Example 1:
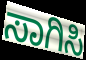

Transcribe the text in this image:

ಸಾಗಿಸಿ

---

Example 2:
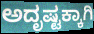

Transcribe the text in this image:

ಅದೃಷ್ಟಕ್ಕಾಗಿ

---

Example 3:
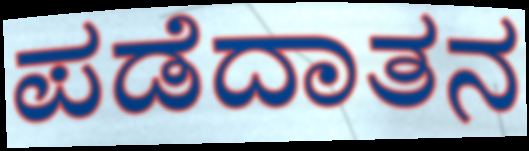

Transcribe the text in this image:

ಪಡೆದಾತನ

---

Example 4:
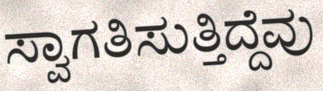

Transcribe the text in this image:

ಸ್ವಾಗತಿಸುತ್ತಿದ್ದೆವು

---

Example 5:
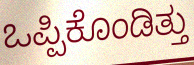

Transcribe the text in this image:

ಒಪ್ಪಿಕೊಂಡಿತ್ತು